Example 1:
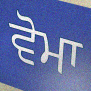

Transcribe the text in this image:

ਵੋਮਾ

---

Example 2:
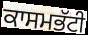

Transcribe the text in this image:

ਕਾਸਮਭੱਟੀ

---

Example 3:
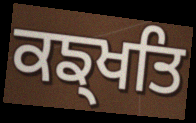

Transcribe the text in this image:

ਕਙ੍ਖਤਿ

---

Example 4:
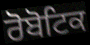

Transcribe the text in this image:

ਰੋਬੋਟਿਕ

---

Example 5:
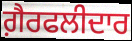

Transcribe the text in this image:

ਗ਼ੈਰਫਲੀਦਾਰ